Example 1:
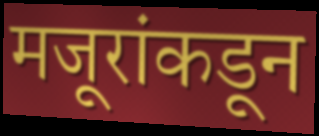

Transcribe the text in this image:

मजूरांकडून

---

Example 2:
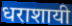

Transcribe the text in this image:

धराशायी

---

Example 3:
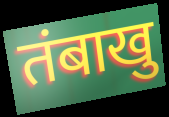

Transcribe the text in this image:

तंबाखु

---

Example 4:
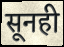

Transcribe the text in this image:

सूनही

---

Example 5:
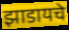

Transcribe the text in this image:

झाडायचे